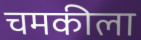
चमकीला